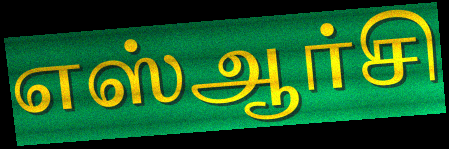
எஸ்ஆர்சி